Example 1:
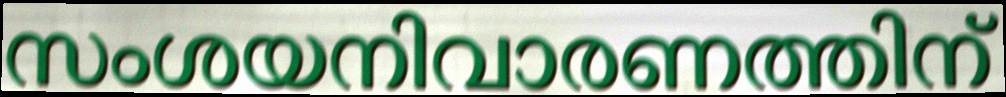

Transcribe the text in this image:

സംശയനിവാരണത്തിന്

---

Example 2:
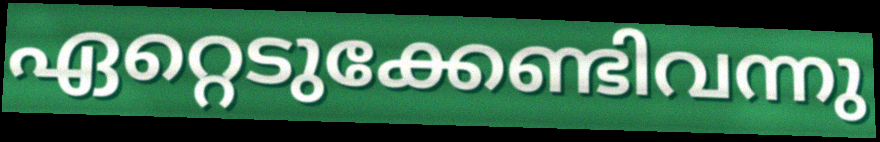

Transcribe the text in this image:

ഏറ്റെടുക്കേണ്ടിവന്നു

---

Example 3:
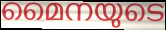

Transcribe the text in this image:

മൈനയുടെ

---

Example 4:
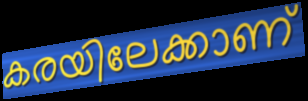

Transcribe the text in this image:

കരയിലേക്കാണ്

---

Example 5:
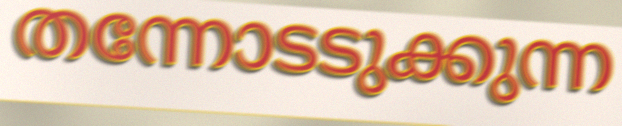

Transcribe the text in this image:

തന്നോടടുക്കുന്ന